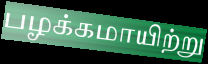
பழக்கமாயிற்று